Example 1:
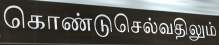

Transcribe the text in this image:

கொண்டுசெல்வதிலும்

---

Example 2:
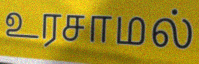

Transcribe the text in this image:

உரசாமல்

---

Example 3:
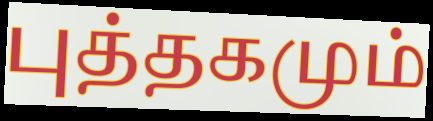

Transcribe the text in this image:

புத்தகமும்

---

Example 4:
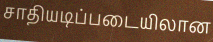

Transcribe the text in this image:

சாதியடிப்படையிலான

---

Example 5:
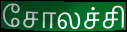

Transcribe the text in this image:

சோலச்சி